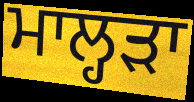
ਮਾਲ੍ਹੜਾ